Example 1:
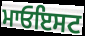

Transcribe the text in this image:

ਮਾਓਇਸਟ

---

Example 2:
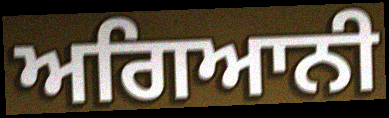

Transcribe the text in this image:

ਅਗਿਆਨੀ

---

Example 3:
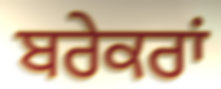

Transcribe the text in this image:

ਬਰੇਕਰਾਂ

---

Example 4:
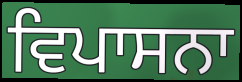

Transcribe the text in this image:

ਵਿਪਾਸਨਾ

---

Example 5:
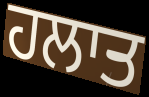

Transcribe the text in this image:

ਹਲਾਤ